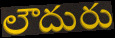
లౌదురు